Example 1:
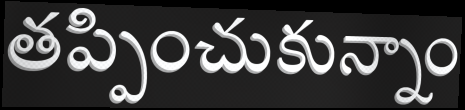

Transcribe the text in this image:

తప్పించుకున్నాం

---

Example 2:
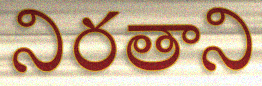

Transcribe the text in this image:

నిరతాని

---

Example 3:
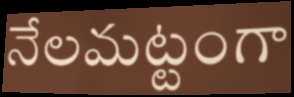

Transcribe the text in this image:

నేలమట్టంగా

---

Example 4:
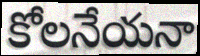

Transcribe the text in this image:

కోలనేయనా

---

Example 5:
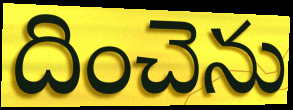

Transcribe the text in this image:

దించెను